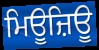
ਮਿਊਜ਼ਿਊ